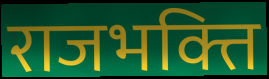
राजभक्ति